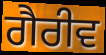
ਗੈਰੀਵ